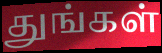
துங்கள்